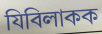
যিবিলাকক